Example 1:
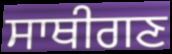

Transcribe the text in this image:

ਸਾਥੀਗਣ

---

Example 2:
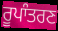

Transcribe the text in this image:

ਰੂਪਾੰਤਰਣ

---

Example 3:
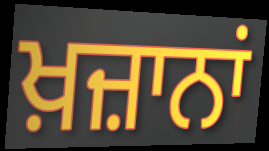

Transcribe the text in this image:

ਖ਼ਜ਼ਾਨਾਂ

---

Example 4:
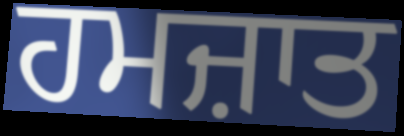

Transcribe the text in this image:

ਹਮਜ਼ਾਤ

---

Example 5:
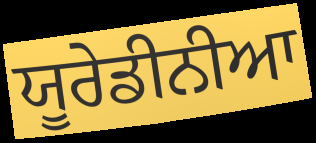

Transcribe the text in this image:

ਯੂਰੇਡੀਨੀਆ